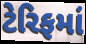
ટેરિફમાં